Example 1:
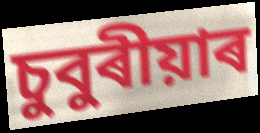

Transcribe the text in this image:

চুবুৰীয়াৰ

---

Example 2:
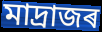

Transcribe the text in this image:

মাদ্ৰাজৰ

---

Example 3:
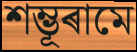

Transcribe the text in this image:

শম্ভূৰামে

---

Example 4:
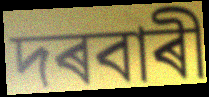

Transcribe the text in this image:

দৰবাৰী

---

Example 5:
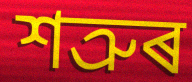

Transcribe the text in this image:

শত্ৰুৰ